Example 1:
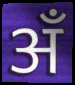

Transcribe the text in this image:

अँ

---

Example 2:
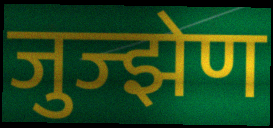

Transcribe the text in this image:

जुज्झेण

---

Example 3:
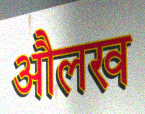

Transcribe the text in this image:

औलख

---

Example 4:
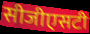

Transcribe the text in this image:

सीजीएसटी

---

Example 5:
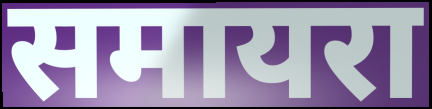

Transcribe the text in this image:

समायरा